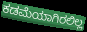
ಕಡಮೆಯಾಗಿರಲಿಲ್ಲ